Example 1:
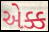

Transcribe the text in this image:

એક્ક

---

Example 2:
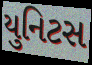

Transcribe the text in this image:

યુનિટસ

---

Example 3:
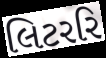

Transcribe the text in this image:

લિટરરિ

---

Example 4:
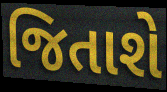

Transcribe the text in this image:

જિતાશે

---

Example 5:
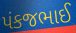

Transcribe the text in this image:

પંકજભાઈ